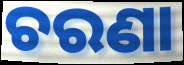
ଚରଣା